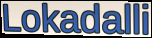
Lokadalli